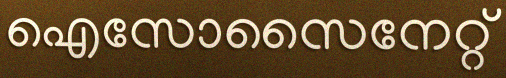
ഐസോസൈനേറ്റ്